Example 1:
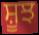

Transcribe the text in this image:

ਸ਼ੂਝ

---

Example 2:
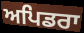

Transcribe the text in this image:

ਅਪਿਡਰਾ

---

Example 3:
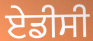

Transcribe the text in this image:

ਏਡੀਸੀ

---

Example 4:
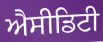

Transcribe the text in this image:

ਐਸੀਡਿਟੀ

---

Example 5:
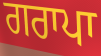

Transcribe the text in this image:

ਗਰਾਪਾ